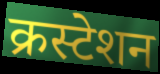
क्रस्टेशन